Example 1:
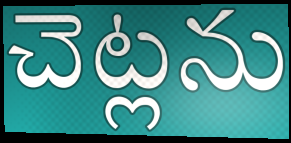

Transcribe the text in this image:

చెట్లను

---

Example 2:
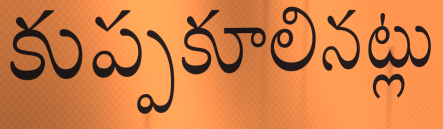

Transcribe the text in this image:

కుప్పకూలినట్లు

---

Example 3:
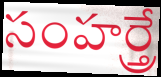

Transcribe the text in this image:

సంహర్త్రే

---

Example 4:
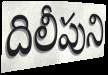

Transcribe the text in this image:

దిలీపుని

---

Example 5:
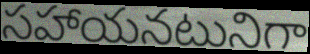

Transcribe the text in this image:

సహాయనటునిగా